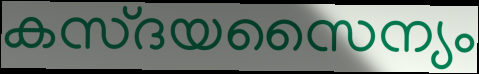
കസ്ദയസൈന്യം